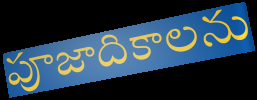
పూజాదికాలను